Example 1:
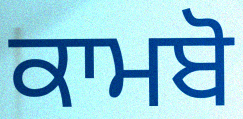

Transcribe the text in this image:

ਕਾਮਬੋ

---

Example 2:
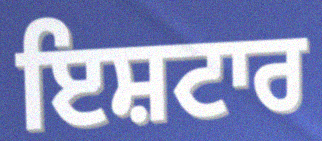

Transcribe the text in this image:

ਇਸ਼ਟਾਰ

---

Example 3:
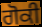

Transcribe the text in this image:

ਗੋਕੀ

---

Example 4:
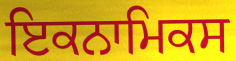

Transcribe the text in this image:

ਇਕਨਾਮਿਕਸ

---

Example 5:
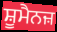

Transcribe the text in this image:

ਸ਼ੂਮੈਨਜ਼